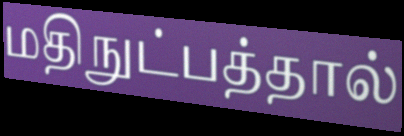
மதிநுட்பத்தால்